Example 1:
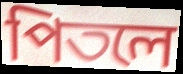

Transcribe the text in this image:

পিতলে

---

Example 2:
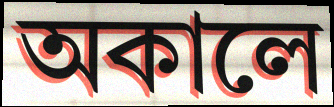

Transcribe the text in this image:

অকালে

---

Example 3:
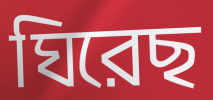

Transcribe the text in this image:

ঘিরেছ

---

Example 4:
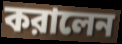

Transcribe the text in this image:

করালেন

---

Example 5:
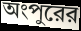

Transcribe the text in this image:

অংপুরের